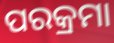
ପରକ୍ରମା